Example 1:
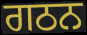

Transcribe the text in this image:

ਗਠਨ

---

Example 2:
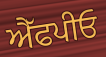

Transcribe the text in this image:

ਐੱਫਪੀਓ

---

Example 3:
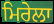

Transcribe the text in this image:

ਮਿਰੇਲਾ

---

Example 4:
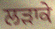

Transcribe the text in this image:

ਲੜਾਕੇ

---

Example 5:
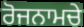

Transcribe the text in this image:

ਰੋਜਨਾਮਚੇ